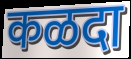
कळदा